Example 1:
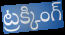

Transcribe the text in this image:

ట్రక్కింగ్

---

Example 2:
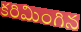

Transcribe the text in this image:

కరిమింగిన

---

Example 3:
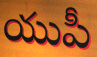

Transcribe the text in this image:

యుపీ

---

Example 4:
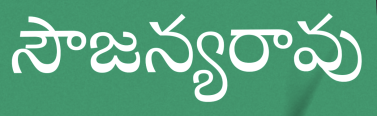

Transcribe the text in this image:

సౌజన్యరావు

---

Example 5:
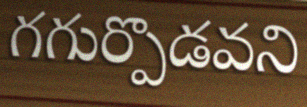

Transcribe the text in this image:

గగుర్పొడవని